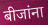
बीजांना